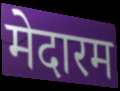
मेदारम